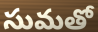
సుమతో